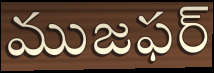
ముజఫర్